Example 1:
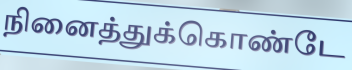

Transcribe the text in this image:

நினைத்துக்கொண்டே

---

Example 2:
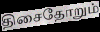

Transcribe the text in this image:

திசைதோறும்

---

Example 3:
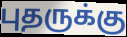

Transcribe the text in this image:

புதருக்கு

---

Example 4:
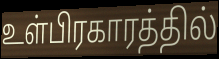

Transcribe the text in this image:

உள்பிரகாரத்தில்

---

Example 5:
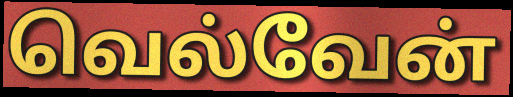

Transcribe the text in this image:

வெல்வேன்